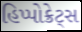
હિપ્પોક્રેટ્સ